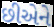
છીએને